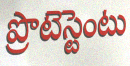
ప్రొటెస్టెంటు